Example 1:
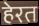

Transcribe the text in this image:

हेरत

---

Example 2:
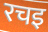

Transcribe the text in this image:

रचइ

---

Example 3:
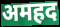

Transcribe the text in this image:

अमहद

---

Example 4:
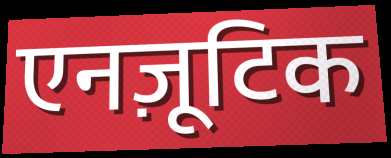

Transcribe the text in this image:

एनज़ूटिक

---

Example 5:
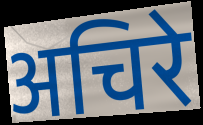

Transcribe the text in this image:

अचिरे